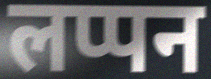
लप्पन